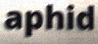
aphid